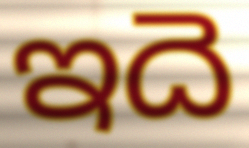
ఇదె